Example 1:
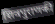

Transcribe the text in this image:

शिवपुराणकी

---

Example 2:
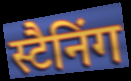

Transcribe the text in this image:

स्टैनिंग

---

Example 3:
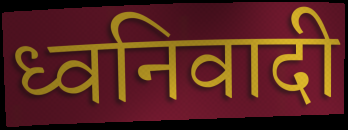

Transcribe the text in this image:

ध्वनिवादी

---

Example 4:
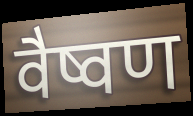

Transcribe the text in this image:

वैष्वण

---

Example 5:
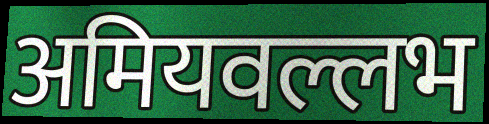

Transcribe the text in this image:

अमियवल्लभ